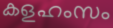
കളഹംസം